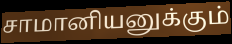
சாமானியனுக்கும்